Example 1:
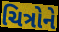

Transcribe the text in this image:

ચિત્રોને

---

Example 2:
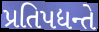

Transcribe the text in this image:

પ્રતિપદ્યન્તે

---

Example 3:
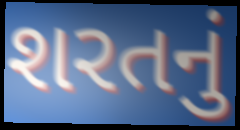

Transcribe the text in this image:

શરતનું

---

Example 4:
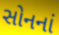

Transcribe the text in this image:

સોનનાં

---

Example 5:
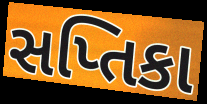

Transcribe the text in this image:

સપ્તિકા